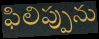
ఫిలిప్పును